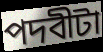
পদবীটা